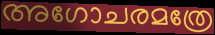
അഗോചരമത്രേ